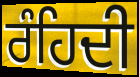
ਰੰਹਿਦੀ